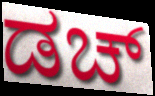
ಡಚ್